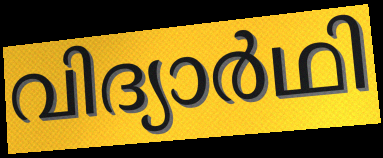
വിദ്യാർഥി